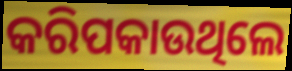
କରିପକାଉଥିଲେ